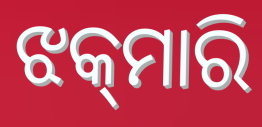
ଝକ୍‌ମାରି